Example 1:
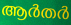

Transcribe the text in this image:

ആർതർ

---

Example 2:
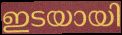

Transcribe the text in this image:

ഇടയായി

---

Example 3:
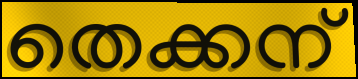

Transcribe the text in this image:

തെക്കന്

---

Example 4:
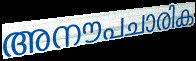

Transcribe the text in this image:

അനൗപചാരിക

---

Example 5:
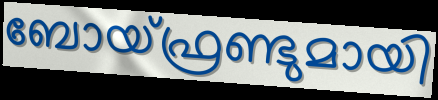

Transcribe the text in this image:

ബോയ്ഫ്രണ്ടുമായി